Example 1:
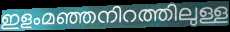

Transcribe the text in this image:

ഇളംമഞ്ഞനിറത്തിലുള്ള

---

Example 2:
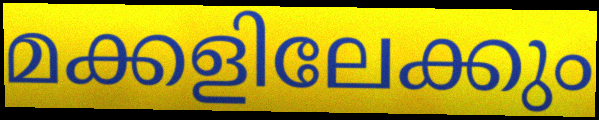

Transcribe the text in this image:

മക്കളിലേക്കും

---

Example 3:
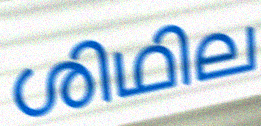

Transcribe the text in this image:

ശിഥില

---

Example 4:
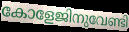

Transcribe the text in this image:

കോളേജിനുവേണ്ടി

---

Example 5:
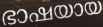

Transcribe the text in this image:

ഭാഷയായ